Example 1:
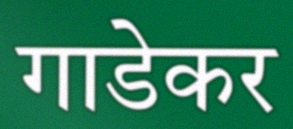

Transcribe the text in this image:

गाडेकर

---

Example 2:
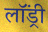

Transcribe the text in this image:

लॉंड्री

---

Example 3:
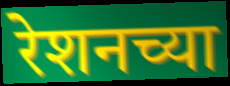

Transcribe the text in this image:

रेशनच्या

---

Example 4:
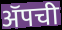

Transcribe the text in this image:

ॲपची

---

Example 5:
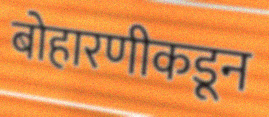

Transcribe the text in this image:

बोहारणीकडून